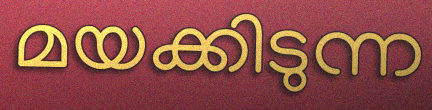
മയക്കിടുന്ന